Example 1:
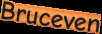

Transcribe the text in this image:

Bruceven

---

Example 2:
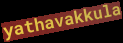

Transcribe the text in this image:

yathavakkula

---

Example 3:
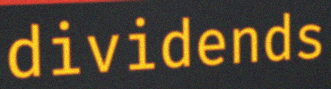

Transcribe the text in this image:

dividends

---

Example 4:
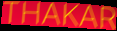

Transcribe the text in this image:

THAKAR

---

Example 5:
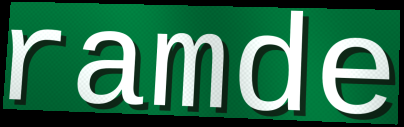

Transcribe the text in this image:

ramde